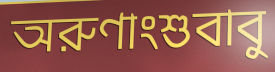
অরুণাংশুবাবু